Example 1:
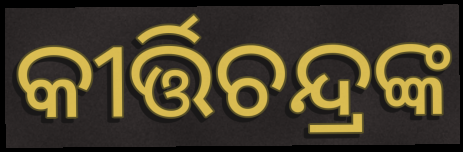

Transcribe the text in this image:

କୀର୍ତ୍ତିଚନ୍ଦ୍ରଙ୍କ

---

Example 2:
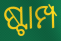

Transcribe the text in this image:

ଷ୍ଟାମ୍ପ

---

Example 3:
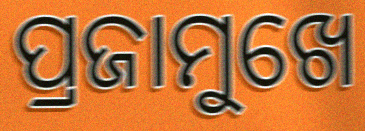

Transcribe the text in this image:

ପ୍ରଜାମୁଖେ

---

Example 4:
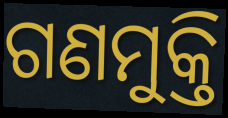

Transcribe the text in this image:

ଗଣମୁକ୍ତି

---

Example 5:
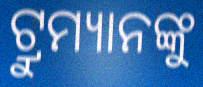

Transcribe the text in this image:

ଟ୍ରୁମ୍ୟାନଙ୍କୁ